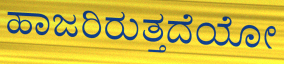
ಹಾಜರಿರುತ್ತದೆಯೋ